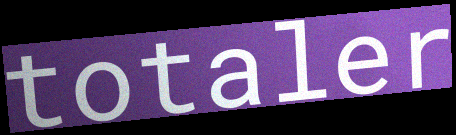
totaler